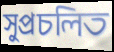
সুপ্রচলিত